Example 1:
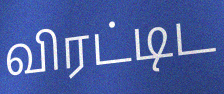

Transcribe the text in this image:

விரட்டிட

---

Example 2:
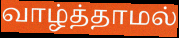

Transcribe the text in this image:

வாழ்த்தாமல்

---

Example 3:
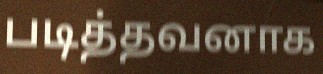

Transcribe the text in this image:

படித்தவனாக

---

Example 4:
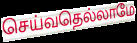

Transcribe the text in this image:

செய்வதெல்லாமே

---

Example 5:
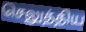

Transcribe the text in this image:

செலுத்திய